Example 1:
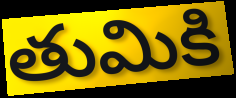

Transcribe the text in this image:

తుమికి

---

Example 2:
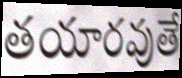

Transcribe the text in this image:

తయారవుతే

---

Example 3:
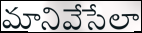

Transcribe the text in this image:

మానివేసేలా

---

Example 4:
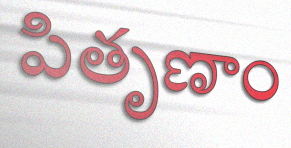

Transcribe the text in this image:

పితృణాం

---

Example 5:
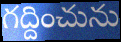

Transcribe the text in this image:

గద్దించును